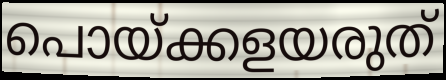
പൊയ്ക്കളയരുത്